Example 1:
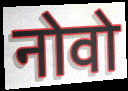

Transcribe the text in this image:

नोवो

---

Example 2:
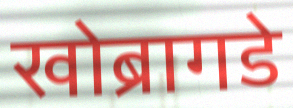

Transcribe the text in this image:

खोब्रागडे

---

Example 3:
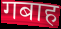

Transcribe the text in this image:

गबाह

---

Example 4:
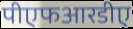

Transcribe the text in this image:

पीएफआरडीए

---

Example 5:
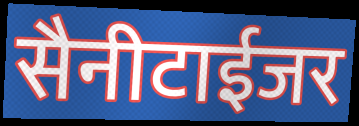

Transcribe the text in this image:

सैनीटाईजर